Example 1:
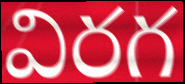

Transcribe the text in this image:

విరగ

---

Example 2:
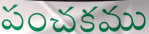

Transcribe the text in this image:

పంచకము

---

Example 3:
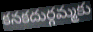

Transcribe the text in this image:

కనకదుర్గమ్మకు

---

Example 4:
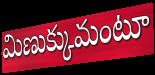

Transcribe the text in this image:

మిణుక్కుమంటూ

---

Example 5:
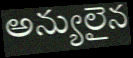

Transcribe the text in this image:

అన్యులైన